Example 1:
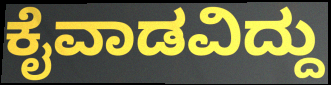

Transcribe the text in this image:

ಕೈವಾಡವಿದ್ದು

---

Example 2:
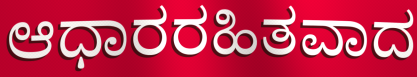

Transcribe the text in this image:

ಆಧಾರರಹಿತವಾದ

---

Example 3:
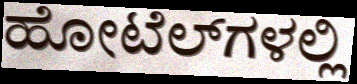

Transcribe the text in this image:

ಹೋಟೆಲ್‍ಗಳಲ್ಲಿ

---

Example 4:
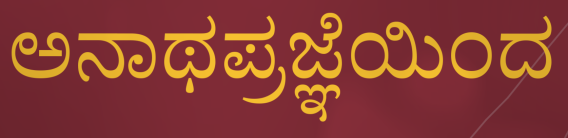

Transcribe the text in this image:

ಅನಾಥಪ್ರಜ್ಞೆಯಿಂದ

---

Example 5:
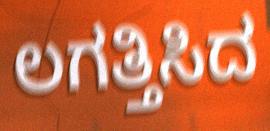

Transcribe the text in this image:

ಲಗತ್ತಿಸಿದ